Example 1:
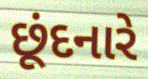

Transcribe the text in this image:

છૂંદનારે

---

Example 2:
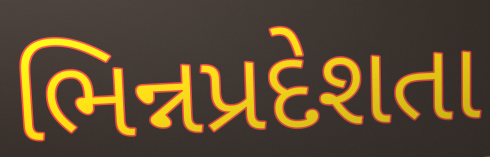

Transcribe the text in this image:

ભિન્નપ્રદેશતા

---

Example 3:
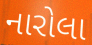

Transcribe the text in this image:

નારોલા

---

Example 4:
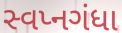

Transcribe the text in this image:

સ્વપ્નગંધા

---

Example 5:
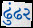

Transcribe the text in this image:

ઢુંઢર